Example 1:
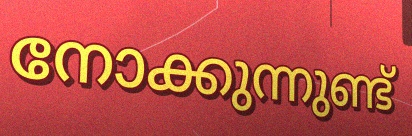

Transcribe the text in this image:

നോക്കുന്നുണ്ട്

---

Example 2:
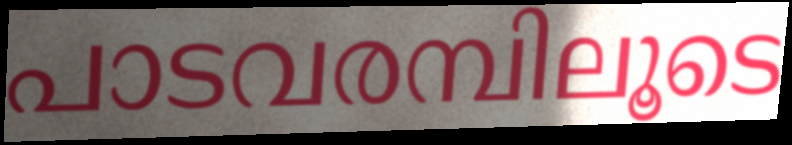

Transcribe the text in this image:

പാടവരമ്പിലൂടെ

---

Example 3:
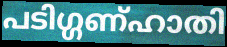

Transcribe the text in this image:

പടിഗ്ഗണ്ഹാതി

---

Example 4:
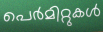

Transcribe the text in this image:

പെർമിറ്റുകൾ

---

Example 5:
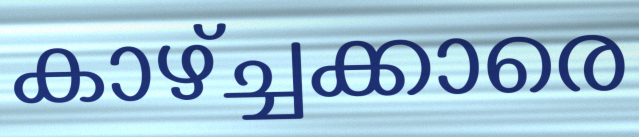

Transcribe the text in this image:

കാഴ്ച്ചക്കാരെ